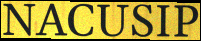
NACUSIP